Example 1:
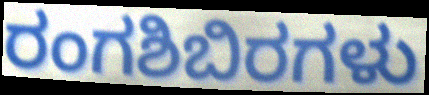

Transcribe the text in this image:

ರಂಗಶಿಬಿರಗಳು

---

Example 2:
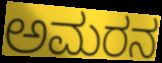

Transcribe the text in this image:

ಅಮರನ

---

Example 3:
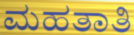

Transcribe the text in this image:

ಮಹತಾತಿ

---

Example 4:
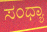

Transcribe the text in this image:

ಸಂಧ್ಯಾ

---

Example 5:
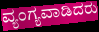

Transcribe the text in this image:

ವ್ಯಂಗ್ಯವಾಡಿದರು